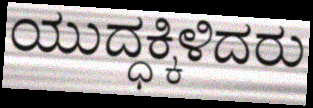
ಯುದ್ಧಕ್ಕಿಳಿದರು